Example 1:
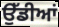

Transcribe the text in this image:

ਉੱਡੀਆਂ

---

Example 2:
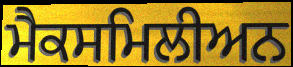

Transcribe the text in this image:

ਮੈਕਸਮਿਲੀਅਨ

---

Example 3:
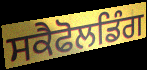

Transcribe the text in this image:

ਸਕੈਫੋਲਡਿੰਗ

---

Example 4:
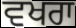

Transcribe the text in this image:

ਵਖਰਾ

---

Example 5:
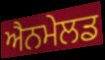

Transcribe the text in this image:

ਐਨਮੇਲਡ